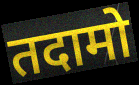
तदामो